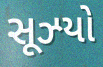
સૂઝ્યો